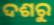
ଦଶରୁ